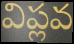
విప్లవ